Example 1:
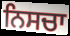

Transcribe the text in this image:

ਨਿਸਚਾ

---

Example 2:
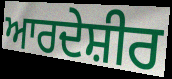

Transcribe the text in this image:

ਆਰਦੇਸ਼ੀਰ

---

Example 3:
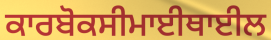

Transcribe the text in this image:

ਕਾਰਬੋਕਸੀਮਾਈਥਾਈਲ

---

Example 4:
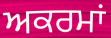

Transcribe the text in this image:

ਅਕਰਮਾਂ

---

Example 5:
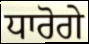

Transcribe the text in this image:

ਧਾਰੋਗੇ